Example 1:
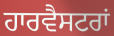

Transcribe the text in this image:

ਹਾਰਵੈਸਟਰਾਂ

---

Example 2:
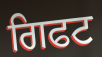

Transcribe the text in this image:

ਗਿਫਟ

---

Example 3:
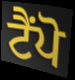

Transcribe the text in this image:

ਟੈਂਪੋ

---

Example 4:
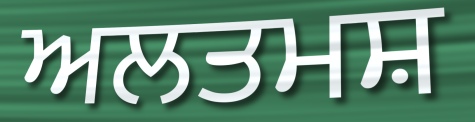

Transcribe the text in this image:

ਅਲਤਮਸ਼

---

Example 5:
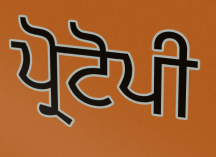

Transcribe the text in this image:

ਪ੍ਰੋਟੋਪੀ